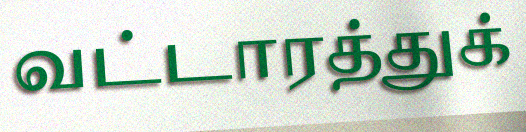
வட்டாரத்துக்